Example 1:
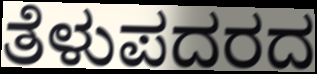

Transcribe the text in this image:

ತೆಳುಪದರದ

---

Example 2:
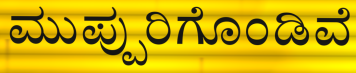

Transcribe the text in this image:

ಮುಪ್ಪುರಿಗೊಂಡಿವೆ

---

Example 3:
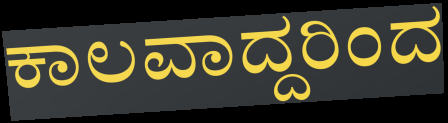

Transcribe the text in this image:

ಕಾಲವಾದ್ದರಿಂದ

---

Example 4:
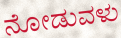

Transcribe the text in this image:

ನೋಡುವಳು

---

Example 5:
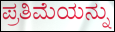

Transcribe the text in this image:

ಪ್ರತಿಮೆಯನ್ನು